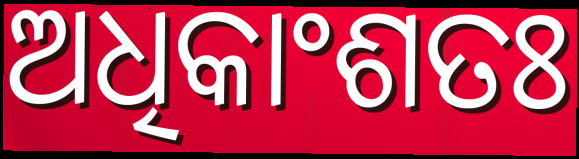
ଅଧିକାଂଶତଃ